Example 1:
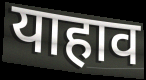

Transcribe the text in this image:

याहाव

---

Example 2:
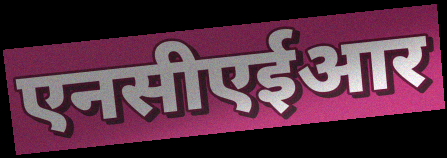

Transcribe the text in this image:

एनसीएईआर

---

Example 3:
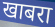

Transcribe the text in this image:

खाबरा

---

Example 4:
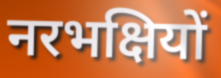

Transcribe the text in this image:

नरभक्षियों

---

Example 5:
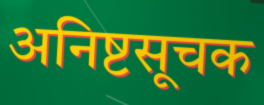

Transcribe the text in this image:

अनिष्टसूचक